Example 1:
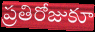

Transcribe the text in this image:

ప్రతిరోజుకూ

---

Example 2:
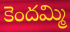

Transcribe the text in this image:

కెందమ్మి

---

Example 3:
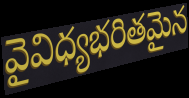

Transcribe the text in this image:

వైవిధ్యభరితమైన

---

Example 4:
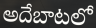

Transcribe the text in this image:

అదేబాటలో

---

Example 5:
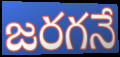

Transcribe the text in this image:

జరగనే